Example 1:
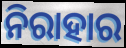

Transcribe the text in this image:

ନିରାହାର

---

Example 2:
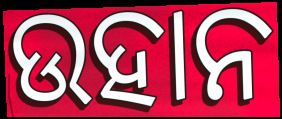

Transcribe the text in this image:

ଉହାନ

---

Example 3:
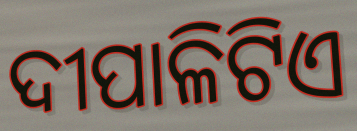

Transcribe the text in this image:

ଦୀପାଳିଟିଏ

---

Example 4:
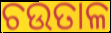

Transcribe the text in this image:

ଚଉତାଳ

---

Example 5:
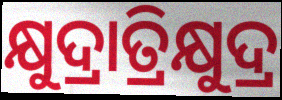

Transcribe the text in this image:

କ୍ଷୁଦ୍ରାତ୍ରିକ୍ଷୁଦ୍ର